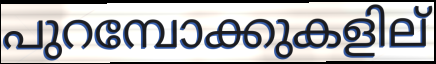
പുറമ്പോക്കുകളില്